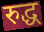
रुद्ध